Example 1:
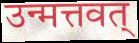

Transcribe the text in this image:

उन्मत्तवत्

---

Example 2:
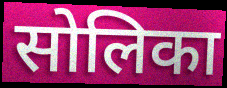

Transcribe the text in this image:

सोलिका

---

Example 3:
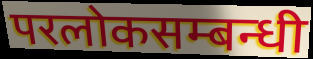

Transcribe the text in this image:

परलोकसम्बन्धी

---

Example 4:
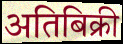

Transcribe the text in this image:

अतिबिक्री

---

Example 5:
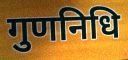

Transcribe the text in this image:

गुणनिधि